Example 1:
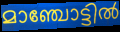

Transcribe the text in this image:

മാഞ്ചോട്ടിൽ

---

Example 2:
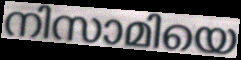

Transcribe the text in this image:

നിസാമിയെ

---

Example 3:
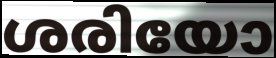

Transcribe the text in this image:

ശരിയോ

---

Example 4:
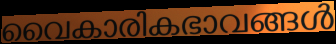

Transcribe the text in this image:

വൈകാരികഭാവങ്ങൾ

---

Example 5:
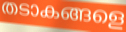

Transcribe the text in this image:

തടാകങ്ങളെ